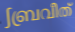
ഽബ്രവീത്